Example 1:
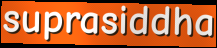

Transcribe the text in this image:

suprasiddha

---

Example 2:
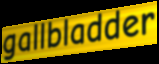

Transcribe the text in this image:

gallbladder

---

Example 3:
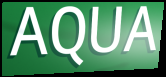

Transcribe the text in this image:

AQUA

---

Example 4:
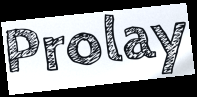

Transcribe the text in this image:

Prolay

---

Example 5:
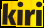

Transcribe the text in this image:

kiri